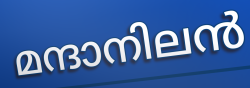
മന്ദാനിലൻ